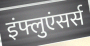
इंफ्लुएंसर्स